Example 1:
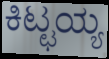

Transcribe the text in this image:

ಕಿಟ್ಟಯ್ಯ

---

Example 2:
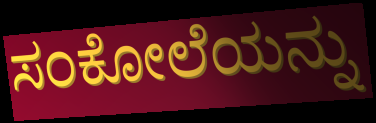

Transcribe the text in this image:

ಸಂಕೋಲೆಯನ್ನು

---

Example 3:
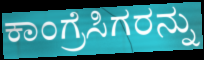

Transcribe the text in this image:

ಕಾಂಗ್ರೆಸಿಗರನ್ನು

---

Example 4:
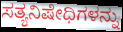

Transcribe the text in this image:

ಸತ್ಯನಿಷೇಧಿಗಳನ್ನು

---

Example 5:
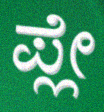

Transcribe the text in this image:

ಪ್ಲೇ